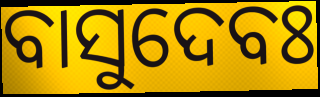
ବାସୁଦେବଃ